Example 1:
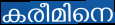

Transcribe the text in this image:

കരീമിനെ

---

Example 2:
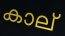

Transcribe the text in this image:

കാല്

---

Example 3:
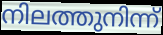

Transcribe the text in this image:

നിലത്തുനിന്ന്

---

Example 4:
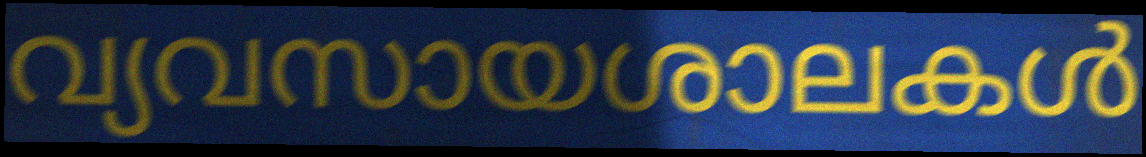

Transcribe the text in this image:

വ്യവസായശാലകൾ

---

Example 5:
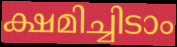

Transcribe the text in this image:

ക്ഷമിച്ചിടാം